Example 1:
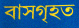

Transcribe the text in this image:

বাসগৃহত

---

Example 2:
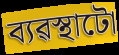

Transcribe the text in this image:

ব্যৱস্থাটো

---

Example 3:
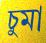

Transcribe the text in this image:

চুমা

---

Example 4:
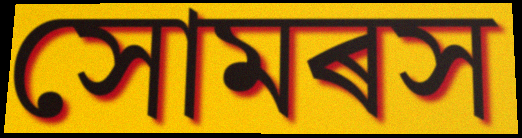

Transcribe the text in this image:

সোমৰস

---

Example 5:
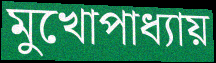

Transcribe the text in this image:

মুখোপাধ্যায়